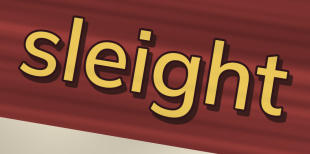
sleight